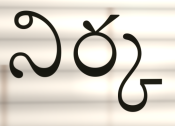
నిర్క